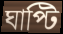
ঘাপ্টি